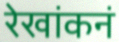
रेखांकनं